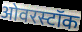
ओवरस्टॉक